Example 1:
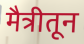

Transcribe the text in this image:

मैत्रीतून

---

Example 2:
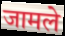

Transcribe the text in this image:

जामले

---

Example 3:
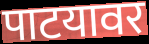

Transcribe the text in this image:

पाटयावर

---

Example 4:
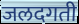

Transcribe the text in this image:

जलदगती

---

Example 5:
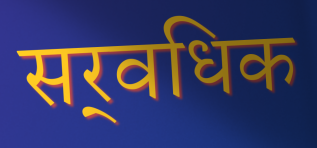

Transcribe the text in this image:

सर्वधिक